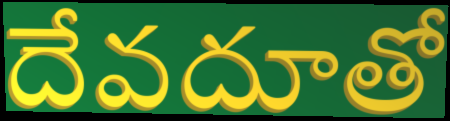
దేవదూతో